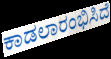
ಕಾಡಲಾರಂಭಿಸಿದೆ